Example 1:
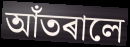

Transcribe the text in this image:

আঁতৰালে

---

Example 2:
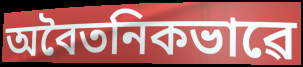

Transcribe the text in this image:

অবৈতনিকভাৱে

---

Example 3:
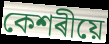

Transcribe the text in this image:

কেশৰীয়ে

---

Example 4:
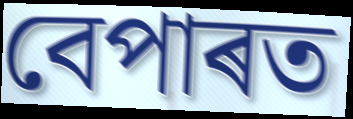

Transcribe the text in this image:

বেপাৰত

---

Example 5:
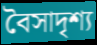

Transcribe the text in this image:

বৈসাদৃশ্য